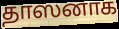
தாஸனாக